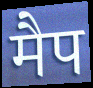
मैप